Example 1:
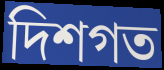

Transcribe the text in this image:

দিশগত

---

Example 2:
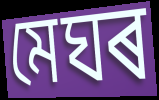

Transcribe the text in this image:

মেঘৰ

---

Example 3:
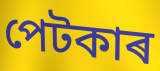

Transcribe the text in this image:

পেটকাৰ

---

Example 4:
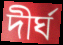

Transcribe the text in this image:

দীৰ্ঘ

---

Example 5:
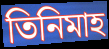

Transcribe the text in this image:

তিনিমাহ